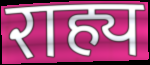
राह्य